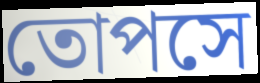
তোপসে